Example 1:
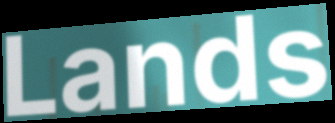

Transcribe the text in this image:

Lands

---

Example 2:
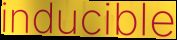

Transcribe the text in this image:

inducible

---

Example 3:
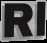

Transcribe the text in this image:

Rl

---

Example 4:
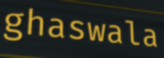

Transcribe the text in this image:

ghaswala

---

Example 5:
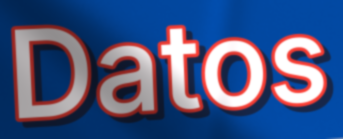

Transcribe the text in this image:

Datos